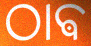
ଠାଵ